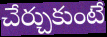
చేర్చుకుంటే